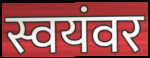
स्वयंवर